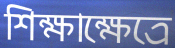
শিক্ষাক্ষেত্রে